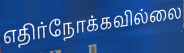
எதிர்நோக்கவில்லை